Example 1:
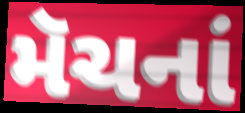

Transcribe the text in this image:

મૅચનાં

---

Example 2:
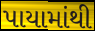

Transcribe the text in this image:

પાયામાંથી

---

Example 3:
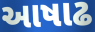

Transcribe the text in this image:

આષાઢ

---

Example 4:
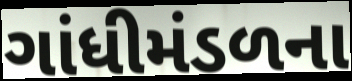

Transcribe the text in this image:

ગાંધીમંડળના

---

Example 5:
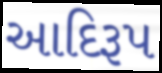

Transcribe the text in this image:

આદિરૂપ